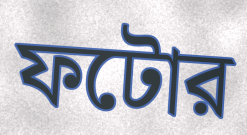
ফটোর